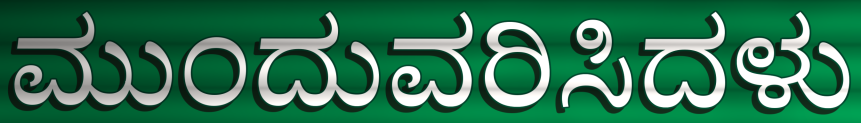
ಮುಂದುವರಿಸಿದಳು